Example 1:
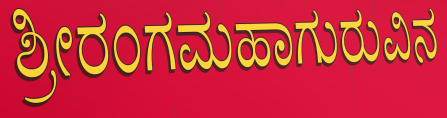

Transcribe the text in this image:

ಶ್ರೀರಂಗಮಹಾಗುರುವಿನ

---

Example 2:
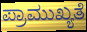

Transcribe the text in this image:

ಪ್ರಾಮುಖ್ಯತೆ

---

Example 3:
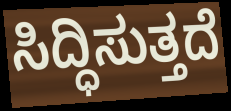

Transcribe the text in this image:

ಸಿದ್ಧಿಸುತ್ತದೆ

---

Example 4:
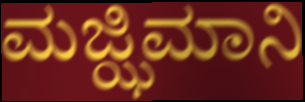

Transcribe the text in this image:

ಮಜ್ಝಿಮಾನಿ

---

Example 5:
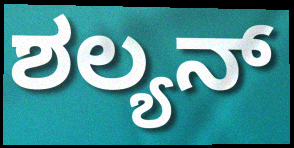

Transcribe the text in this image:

ಶಲ್ಯನ್